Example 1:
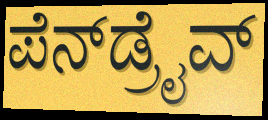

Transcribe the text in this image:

ಪೆನ್‌ಡ್ರೈವ್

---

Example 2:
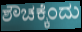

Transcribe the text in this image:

ಶೌಚಕ್ಕೆಂದು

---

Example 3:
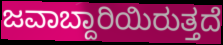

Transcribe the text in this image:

ಜವಾಬ್ದಾರಿಯಿರುತ್ತದೆ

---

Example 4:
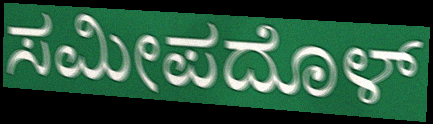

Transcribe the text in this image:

ಸಮೀಪದೊಳ್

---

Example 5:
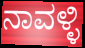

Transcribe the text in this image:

ನಾವಳ್ಳಿ